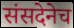
संसदेनेच